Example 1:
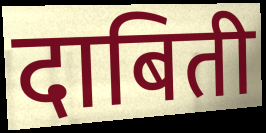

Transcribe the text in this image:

दाबिती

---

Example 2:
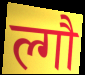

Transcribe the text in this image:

ल्गौ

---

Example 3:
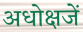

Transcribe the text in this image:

अधोक्षजें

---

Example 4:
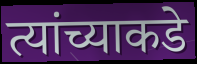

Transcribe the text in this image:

त्यांच्याकडे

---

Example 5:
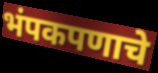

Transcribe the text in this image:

भंपकपणाचे